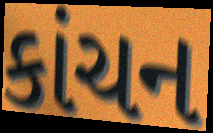
કાંચન